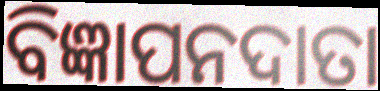
ବିଜ୍ଞାପନଦାତା